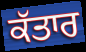
ਕੱਤਾਰ